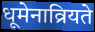
धूमेनाव्रियते